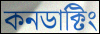
কনডাক্টিং